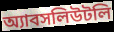
অ্যাবসলিউটলি